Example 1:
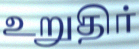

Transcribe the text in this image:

உறுதிர்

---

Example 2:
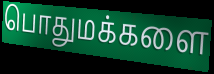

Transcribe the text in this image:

பொதுமக்களை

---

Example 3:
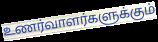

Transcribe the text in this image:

உணர்வாளர்களுக்கும்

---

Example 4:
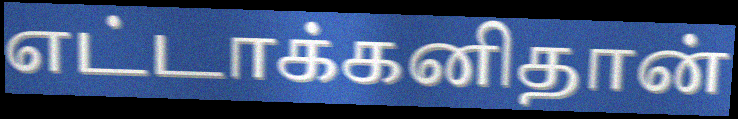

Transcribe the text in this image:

எட்டாக்கனிதான்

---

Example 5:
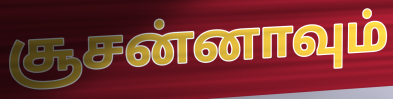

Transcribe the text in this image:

சூசன்னாவும்